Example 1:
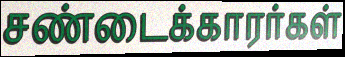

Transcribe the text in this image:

சண்டைக்காரர்கள்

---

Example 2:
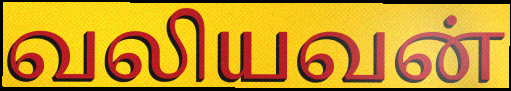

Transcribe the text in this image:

வலியவன்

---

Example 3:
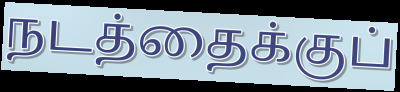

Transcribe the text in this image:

நடத்தைக்குப்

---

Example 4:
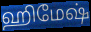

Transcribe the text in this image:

ஹிமேஷ்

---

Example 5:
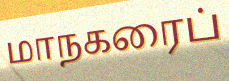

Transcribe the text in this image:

மாநகரைப்